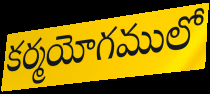
కర్మయోగములో